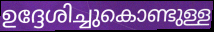
ഉദ്ദേശിച്ചുകൊണ്ടുള്ള